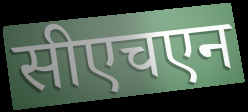
सीएचएन